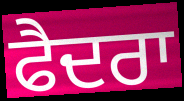
ਫੈਦਰਾ